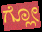
ಗ್ಲೋ